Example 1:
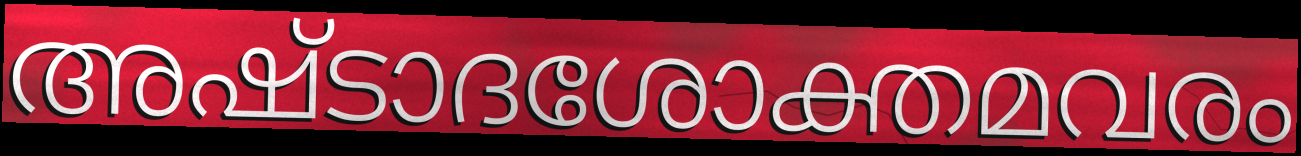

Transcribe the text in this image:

അഷ്ടാദശോക്തമവരം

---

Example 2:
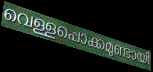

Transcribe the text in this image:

വെള്ളപ്പൊക്കമുണ്ടായി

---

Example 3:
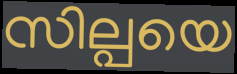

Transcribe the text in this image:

സില്പയെ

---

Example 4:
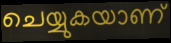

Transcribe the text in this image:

ചെയ്യുകയാണ്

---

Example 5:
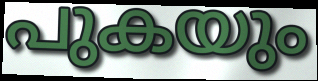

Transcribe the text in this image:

പുകയും